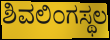
ಶಿವಲಿಂಗಸ್ಥಲ